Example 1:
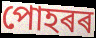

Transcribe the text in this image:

পোহৰৰ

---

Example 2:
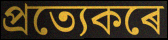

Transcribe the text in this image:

প্ৰত্যেকৰে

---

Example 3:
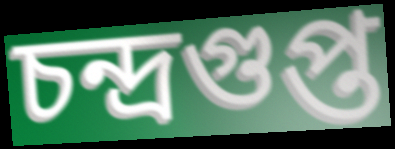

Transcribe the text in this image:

চন্দ্ৰগুপ্ত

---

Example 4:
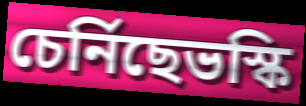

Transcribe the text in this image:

চেৰ্নিছেভস্কি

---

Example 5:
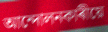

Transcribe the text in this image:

আন্দোলনকাৰীয়ে